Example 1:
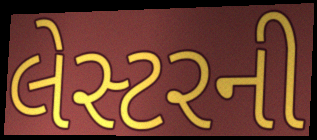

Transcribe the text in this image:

લેસ્ટરની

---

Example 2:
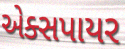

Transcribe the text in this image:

એક્સપાયર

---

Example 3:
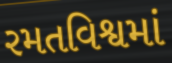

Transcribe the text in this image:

રમતવિશ્વમાં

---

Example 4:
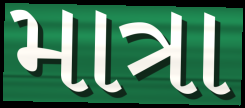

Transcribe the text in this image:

માત્રા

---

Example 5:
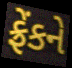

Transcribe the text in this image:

ફ્રેંકને